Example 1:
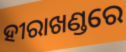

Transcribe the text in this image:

ହୀରାଖଣ୍ଡରେ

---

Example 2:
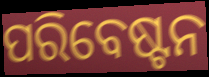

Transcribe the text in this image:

ପରିବେଷ୍ଟନ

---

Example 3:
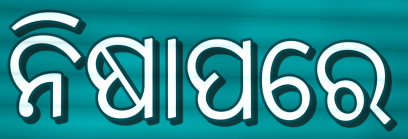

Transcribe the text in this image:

ନିଷାପରେ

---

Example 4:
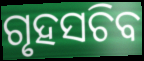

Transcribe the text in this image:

ଗୃହସଚିବ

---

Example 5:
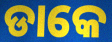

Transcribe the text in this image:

ଡାକେ